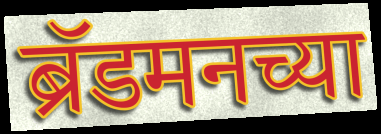
ब्रॅडमनच्या